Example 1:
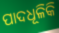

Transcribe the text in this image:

ପାଦଧୂଳିକି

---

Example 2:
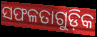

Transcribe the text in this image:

ସଫଳତାଗୁଡ଼ିକ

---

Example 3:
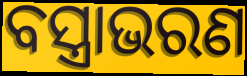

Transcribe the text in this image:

ବସ୍ତ୍ରାଭରଣ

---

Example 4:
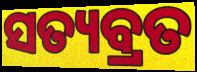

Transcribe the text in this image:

ସତ୍ୟବ୍ରତ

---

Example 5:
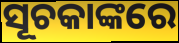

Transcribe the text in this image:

ସୂଚକାଙ୍କରେ